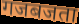
गजबजता